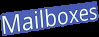
Mailboxes